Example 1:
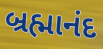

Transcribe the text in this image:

બ્રહ્માનંદ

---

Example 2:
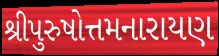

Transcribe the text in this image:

શ્રીપુરુષોત્તમનારાયણ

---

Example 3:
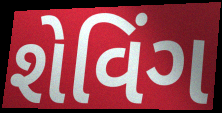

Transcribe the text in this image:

શેવિંગ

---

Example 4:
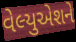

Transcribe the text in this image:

વેલ્યુએશને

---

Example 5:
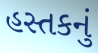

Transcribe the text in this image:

હસ્તકનું